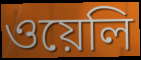
ওয়েলি